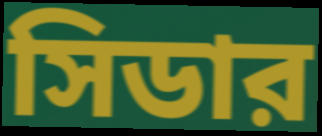
সিডার